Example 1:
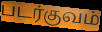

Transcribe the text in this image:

படர்குவம்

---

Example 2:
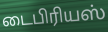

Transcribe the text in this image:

டைபிரியஸ்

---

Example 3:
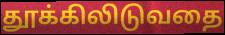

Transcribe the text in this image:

தூக்கிலிடுவதை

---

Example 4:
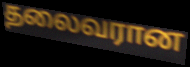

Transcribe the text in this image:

தலைவரான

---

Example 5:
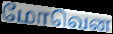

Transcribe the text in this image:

மோவென